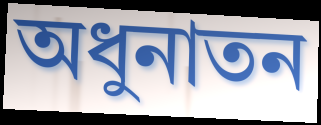
অধুনাতন